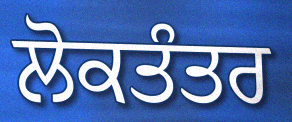
ਲੋਕਤੰਤਰ